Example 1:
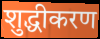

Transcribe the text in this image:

शुद्धीकरण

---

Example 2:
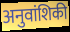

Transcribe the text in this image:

अनुवांशिकी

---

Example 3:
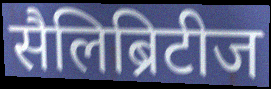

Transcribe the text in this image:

सैलिब्रिटीज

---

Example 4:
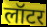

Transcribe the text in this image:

लॉटर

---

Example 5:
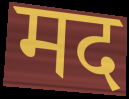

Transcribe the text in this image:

मद